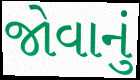
જોવાનું